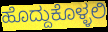
ಹೊದ್ದುಕೊಳ್ಳಲಿ